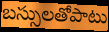
బస్సులతోపాటు